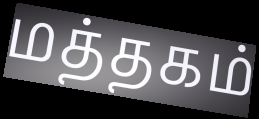
மத்தகம்